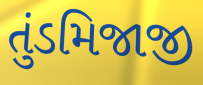
તુંડમિજાજી